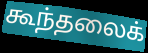
கூந்தலைக்